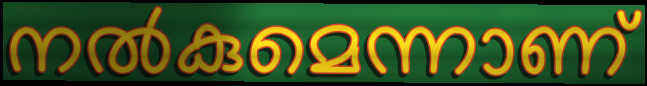
നൽകുമെന്നാണ്